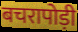
बचरापोड़ी